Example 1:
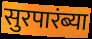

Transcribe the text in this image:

सुरपारंब्या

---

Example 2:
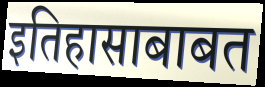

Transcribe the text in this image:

इतिहासाबाबत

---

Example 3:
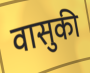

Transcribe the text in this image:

वासुकी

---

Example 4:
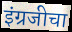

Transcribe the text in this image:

इंग्रजीचा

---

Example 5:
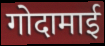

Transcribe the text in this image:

गोदामाई